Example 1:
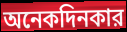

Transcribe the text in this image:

অনেকদিনকার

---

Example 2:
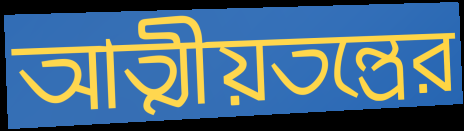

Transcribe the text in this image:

আত্মীয়তন্ত্রের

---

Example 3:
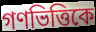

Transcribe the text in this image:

গণভিত্তিকে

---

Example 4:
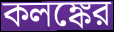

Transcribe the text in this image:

কলঙ্কের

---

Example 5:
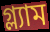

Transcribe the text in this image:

গ্ল্যাম